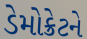
ડેમોક્રેટને